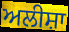
ਅਲੀਸ਼ਾ